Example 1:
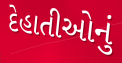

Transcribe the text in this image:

દેહાતીઓનું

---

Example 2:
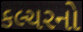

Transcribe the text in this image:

કલ્ચરનો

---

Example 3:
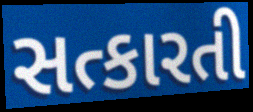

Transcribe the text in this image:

સત્કારતી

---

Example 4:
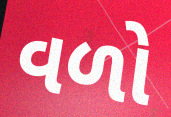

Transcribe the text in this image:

વળો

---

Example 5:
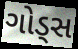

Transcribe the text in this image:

ગોડ્સ